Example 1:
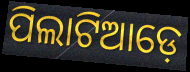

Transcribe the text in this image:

ପିଲାଟିଆଡ଼େ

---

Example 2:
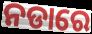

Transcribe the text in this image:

ନଡାରେ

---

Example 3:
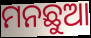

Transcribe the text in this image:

ମନଛୁଆ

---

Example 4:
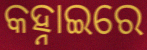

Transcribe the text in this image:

କହ୍ନାଇରେ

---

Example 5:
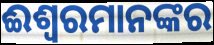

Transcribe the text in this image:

ଈଶ୍ୱରମାନଙ୍କର